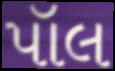
પૉલ